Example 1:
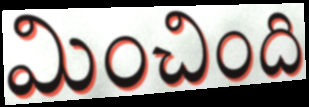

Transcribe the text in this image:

మించింది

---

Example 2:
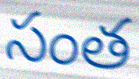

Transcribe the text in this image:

సంత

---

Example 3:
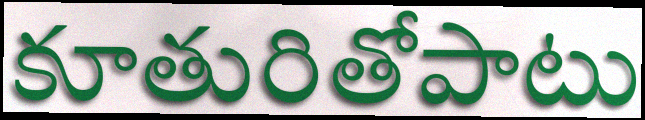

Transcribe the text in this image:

కూతురితోపాటు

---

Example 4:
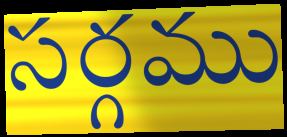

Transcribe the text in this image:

సర్గము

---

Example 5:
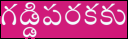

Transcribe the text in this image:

గడ్డిపరకకు